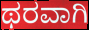
ಥರವಾಗಿ